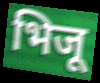
भिजू